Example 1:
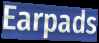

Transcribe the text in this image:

Earpads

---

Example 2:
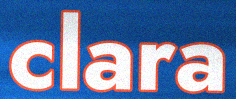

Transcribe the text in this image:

clara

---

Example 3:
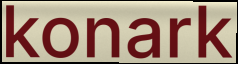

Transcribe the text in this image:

konark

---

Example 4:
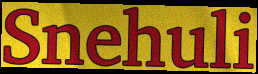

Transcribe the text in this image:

Snehuli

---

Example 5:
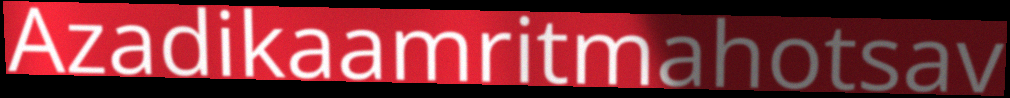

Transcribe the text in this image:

Azadikaamritmahotsav